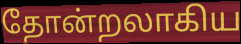
தோன்றலாகிய